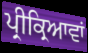
ਪ੍ਰੀਕ੍ਰਿਆਵਾਂ